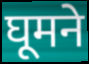
घूमने